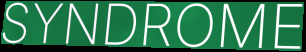
SYNDROME